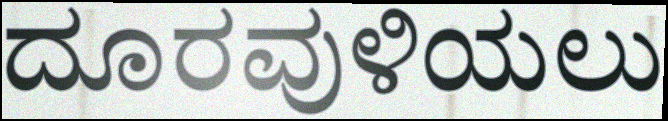
ದೂರವುಳಿಯಲು